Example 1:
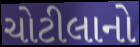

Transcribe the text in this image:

ચોટીલાનો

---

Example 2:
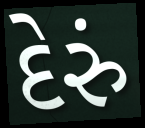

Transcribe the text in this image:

દેરું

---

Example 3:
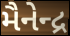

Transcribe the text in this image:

મૈનેન્દ્ર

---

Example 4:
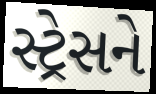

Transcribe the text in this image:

સ્ટ્રેસને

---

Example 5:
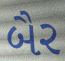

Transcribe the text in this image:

બૈર